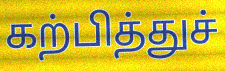
கற்பித்துச்